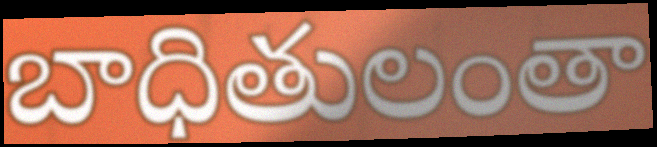
బాధితులంతా